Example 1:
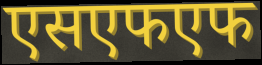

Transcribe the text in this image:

एसएफएफ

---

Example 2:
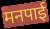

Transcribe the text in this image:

मनपाई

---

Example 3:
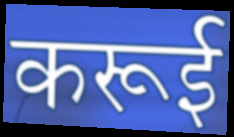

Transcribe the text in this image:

करूई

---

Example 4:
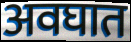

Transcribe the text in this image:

अवघात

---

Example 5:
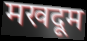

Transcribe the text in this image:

मखदूम